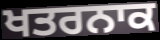
ਖਤਰਨਾਕ